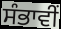
ਸੰਭਾਵੀਂ